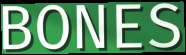
BONES